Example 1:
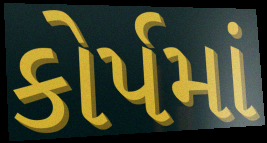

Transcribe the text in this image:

કોર્પમાં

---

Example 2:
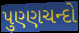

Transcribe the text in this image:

પુણ્ણચન્દો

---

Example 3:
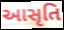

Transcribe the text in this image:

આસૃતિ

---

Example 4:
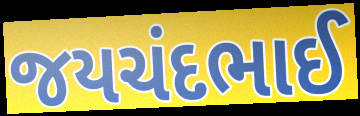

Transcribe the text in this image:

જયચંદભાઈ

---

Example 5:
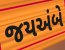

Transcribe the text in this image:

જયઅંબે